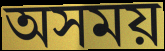
অসময়